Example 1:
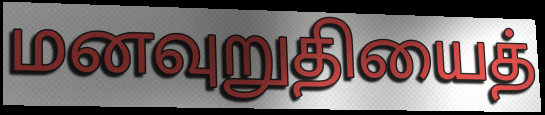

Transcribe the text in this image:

மனவுறுதியைத்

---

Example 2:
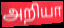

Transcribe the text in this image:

அறியா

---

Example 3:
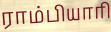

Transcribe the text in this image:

ராம்பியாரி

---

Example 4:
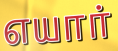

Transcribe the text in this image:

எயார்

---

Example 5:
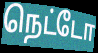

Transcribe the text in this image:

நெட்டோ